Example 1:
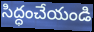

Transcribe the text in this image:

సిద్ధంచేయండి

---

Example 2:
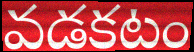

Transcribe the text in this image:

వడకటం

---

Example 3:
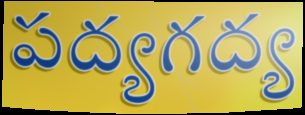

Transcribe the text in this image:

పద్యగద్య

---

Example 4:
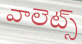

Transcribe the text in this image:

వాలెట్స్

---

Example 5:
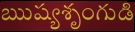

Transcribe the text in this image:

ఋష్యశృంగుడి